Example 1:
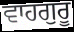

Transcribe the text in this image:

ਵਾਹਗੁਰੂ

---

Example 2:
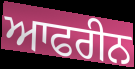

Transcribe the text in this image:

ਆਫਰੀਨ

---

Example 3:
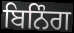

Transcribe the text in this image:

ਬਿਨਿੰਗ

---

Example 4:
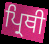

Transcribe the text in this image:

ਪ੍ਰਿਥੀ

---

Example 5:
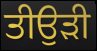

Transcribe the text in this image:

ਤੀਉੜੀ